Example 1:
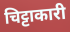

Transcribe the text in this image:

चिट्टाकारी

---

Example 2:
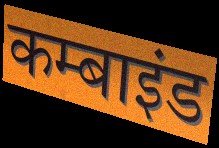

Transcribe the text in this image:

कम्बाइंड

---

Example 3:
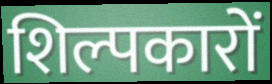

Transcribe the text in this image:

शिल्पकारों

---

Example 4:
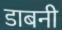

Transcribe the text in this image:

डाबनी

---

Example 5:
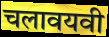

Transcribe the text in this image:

चलावयवी